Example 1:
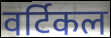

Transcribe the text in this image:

वर्टिकल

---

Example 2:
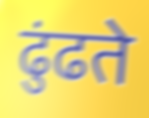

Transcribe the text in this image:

ढुंढते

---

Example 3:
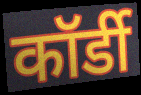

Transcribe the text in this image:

कॉर्डी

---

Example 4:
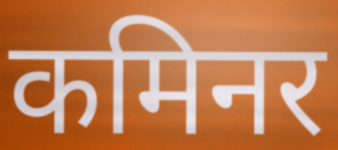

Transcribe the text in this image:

कमिनर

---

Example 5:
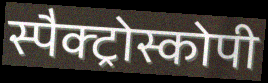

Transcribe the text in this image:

स्पैक्ट्रोस्कोपी